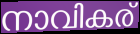
നാവികര്